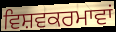
ਵਿਸ਼ਵਕਰਮਾਵਾਂ